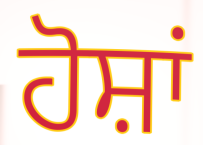
ਹੋਸ਼ਾਂ